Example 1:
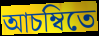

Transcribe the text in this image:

আচম্বিতে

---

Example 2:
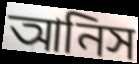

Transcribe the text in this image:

আনিস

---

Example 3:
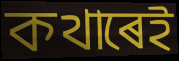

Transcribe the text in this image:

কথাৰেই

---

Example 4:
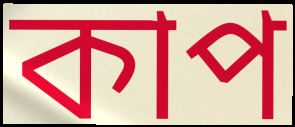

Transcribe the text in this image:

কাপ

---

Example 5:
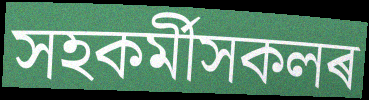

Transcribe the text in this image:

সহকৰ্মীসকলৰ